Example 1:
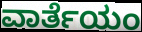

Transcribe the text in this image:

ವಾರ್ತೆಯಂ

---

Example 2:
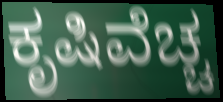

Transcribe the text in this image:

ಕೃಷಿವೆಚ್ಚ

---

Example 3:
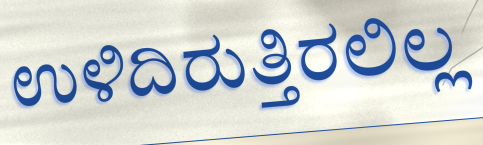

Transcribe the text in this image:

ಉಳಿದಿರುತ್ತಿರಲಿಲ್ಲ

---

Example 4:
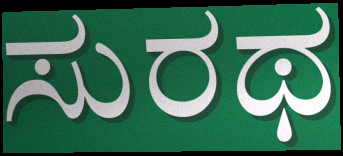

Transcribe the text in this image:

ಸುರಥ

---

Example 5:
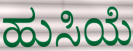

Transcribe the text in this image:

ಹುಸಿಯೆ